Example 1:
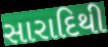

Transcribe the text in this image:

સારાદિથી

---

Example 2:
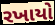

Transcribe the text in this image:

રખાયો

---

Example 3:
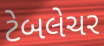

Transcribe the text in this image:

ટેબલેચર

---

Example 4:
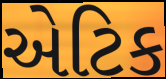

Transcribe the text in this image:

એટિક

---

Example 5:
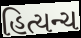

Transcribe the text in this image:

હિત્યન્ચ